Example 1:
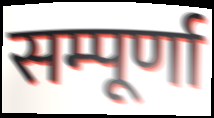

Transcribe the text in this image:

सम्पूर्णा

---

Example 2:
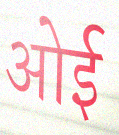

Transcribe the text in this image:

ओई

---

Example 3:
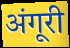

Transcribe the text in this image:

अंगूरी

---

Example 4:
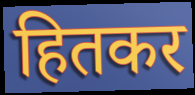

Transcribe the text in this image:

हितकर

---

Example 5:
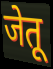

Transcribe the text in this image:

जेतू